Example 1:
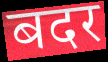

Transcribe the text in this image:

बदर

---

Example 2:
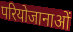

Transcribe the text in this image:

परियोजानाओं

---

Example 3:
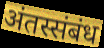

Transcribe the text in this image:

अंतस्संबंध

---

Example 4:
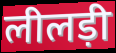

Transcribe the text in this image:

लीलड़ी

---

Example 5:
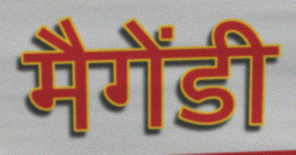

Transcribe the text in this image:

मैगेंडी